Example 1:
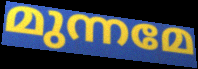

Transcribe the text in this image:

മുന്നമേ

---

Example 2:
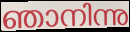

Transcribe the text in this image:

ഞാനിന്നു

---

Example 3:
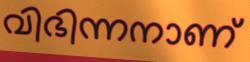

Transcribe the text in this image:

വിഭിന്നനാണ്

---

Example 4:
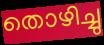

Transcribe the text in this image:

തൊഴിച്ചു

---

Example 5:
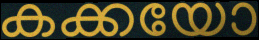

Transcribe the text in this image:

കക്കയോ